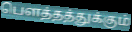
பௌத்தத்துக்கும்